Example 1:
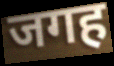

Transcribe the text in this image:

जगह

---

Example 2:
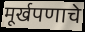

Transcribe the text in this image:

मूर्खपणाचे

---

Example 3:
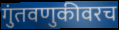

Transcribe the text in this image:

गुंतवणुकीवरच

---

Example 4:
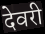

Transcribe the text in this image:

देवरी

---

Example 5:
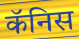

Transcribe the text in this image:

कॅनिस